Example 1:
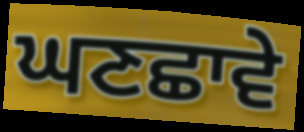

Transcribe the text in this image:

ਘਣਛਾਵੇ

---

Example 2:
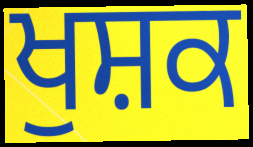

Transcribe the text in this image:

ਖੁਸ਼ਕ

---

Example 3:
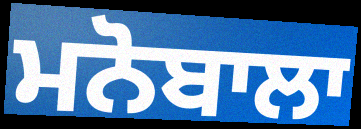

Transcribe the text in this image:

ਮਨੋਬਾਲਾ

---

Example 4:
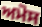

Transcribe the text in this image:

ਅਮੋਸ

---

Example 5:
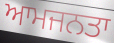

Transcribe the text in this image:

ਆਮਜਨਤਾ